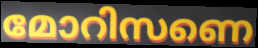
മോറിസണെ